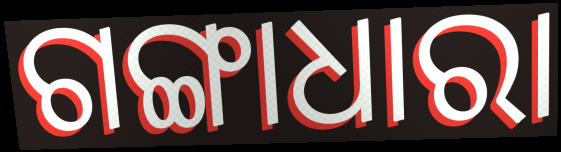
ଗଙ୍ଗାଧାରା